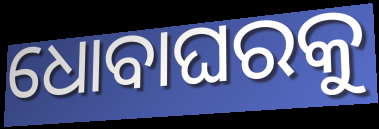
ଧୋବାଘରକୁ